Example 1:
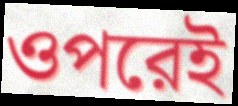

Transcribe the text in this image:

ওপরেই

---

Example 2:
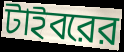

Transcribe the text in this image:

টাইবরের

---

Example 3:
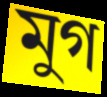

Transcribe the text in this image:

মুগ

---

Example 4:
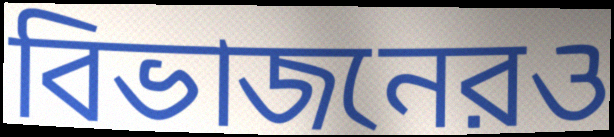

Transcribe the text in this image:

বিভাজনেরও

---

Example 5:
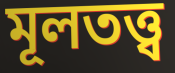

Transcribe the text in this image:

মূলতত্ত্ব